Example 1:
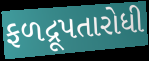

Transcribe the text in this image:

ફળદ્રૂપતારોધી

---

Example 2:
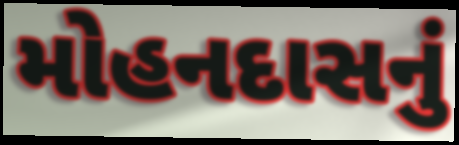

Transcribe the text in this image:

મોહનદાસનું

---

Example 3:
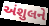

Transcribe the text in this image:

અંશુલને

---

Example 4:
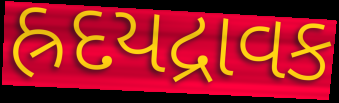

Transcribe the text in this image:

હ્રદયદ્રાવક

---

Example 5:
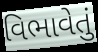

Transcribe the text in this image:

વિભાવેતું